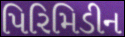
પિરિમિડીન